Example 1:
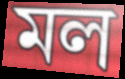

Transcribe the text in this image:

মল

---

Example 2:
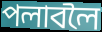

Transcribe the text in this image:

পলাবলৈ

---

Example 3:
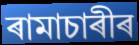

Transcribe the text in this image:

ৰামাচাৰীৰ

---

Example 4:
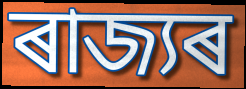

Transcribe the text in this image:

ৰাজ্যৰ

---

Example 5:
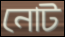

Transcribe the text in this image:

নোট